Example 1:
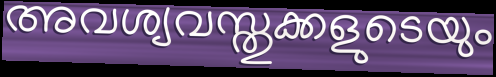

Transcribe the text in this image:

അവശ്യവസ്തുക്കളുടെയും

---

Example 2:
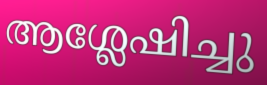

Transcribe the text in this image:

ആശ്ലേഷിച്ചു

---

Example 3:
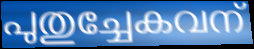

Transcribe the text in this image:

പുതുച്ചേകവന്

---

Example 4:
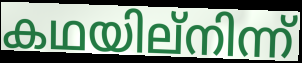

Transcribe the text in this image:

കഥയില്നിന്ന്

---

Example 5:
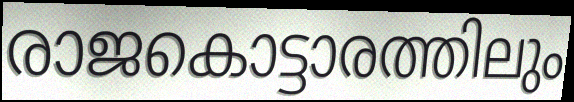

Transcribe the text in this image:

രാജകൊട്ടാരത്തിലും